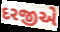
દરજીએ